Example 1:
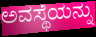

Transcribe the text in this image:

ಅವಸ್ಥೆಯನ್ನು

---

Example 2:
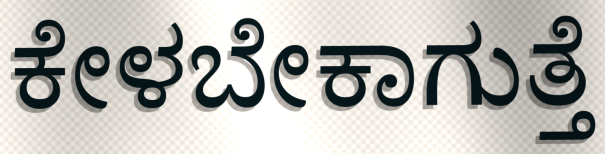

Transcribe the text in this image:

ಕೇಳಬೇಕಾಗುತ್ತೆ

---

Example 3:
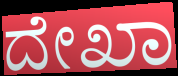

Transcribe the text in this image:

ದೇಖಾ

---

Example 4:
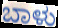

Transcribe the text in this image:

ಬಾಳು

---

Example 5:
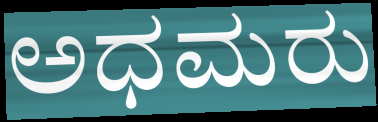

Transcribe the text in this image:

ಅಧಮರು